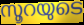
സൂറയുടെ